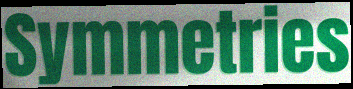
Symmetries